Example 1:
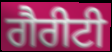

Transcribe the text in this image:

ਗੈਰੀਟੀ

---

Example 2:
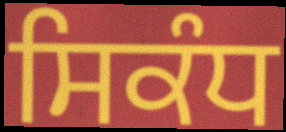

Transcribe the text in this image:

ਸਿਕੰਧ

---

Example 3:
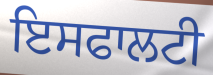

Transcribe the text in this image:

ਇਸਫਾਲਟੀ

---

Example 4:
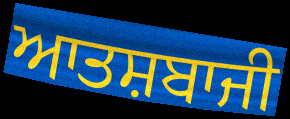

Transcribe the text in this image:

ਆਤਸ਼ਬਾਜੀ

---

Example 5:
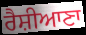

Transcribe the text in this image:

ਰੈਸ਼ੀਆਣਾ